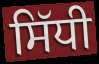
ਸਿੱਧੀ